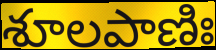
శూలపాణిః